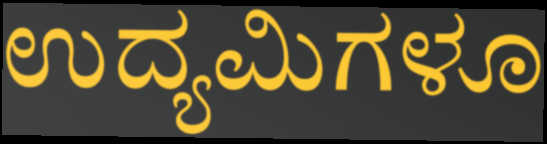
ಉದ್ಯಮಿಗಳೂ